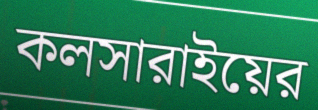
কলসারাইয়ের